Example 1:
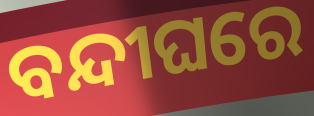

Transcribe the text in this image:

ବନ୍ଦୀଘରେ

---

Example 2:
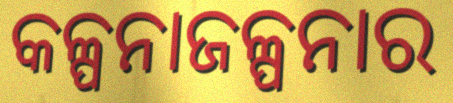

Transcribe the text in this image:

କଳ୍ପନାଜଳ୍ପନାର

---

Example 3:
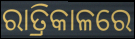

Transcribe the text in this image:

ରାତ୍ରିକାଳରେ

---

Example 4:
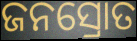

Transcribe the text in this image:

ଜନସ୍ରୋତ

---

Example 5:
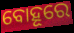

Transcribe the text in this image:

ବୋହୂରେ